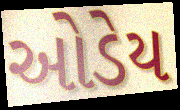
ઓડેય